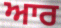
ਆਰ